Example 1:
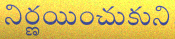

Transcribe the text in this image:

నిర్ణయించుకుని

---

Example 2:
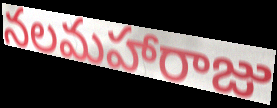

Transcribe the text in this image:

నలమహారాజు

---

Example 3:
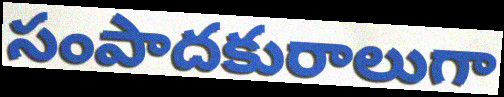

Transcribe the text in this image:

సంపాదకురాలుగా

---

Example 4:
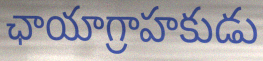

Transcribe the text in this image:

ఛాయాగ్రాహకుడు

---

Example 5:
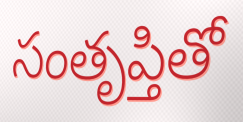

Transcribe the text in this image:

సంతృప్తితో